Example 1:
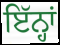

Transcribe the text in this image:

ਇੱਨ੍ਹਾਂ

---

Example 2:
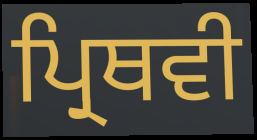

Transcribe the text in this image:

ਪ੍ਰਿਥਵੀ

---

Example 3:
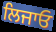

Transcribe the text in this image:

ਲਿਜਾਓ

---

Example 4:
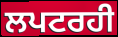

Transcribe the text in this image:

ਲਪਟਰਹੀ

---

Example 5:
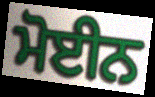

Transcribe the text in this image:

ਮੋਈਨ